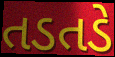
તડતડે